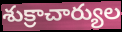
శుక్రాచార్యుల